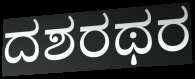
ದಶರಥರ